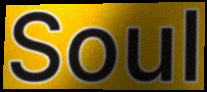
Soul